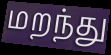
மறந்து